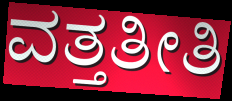
ವತ್ತತೀತಿ